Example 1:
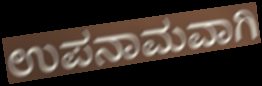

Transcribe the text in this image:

ಉಪನಾಮವಾಗಿ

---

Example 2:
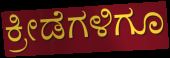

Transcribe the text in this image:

ಕ್ರೀಡೆಗಳಿಗೂ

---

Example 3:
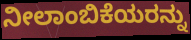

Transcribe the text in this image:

ನೀಲಾಂಬಿಕೆಯರನ್ನು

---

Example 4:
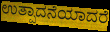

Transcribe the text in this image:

ಉತ್ಪಾದನೆಯಾದರೆ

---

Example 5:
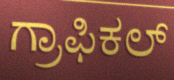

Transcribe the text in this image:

ಗ್ರಾಫಿಕಲ್